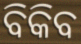
ବିକିବ